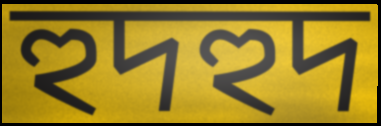
হুদহুদ